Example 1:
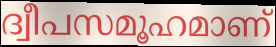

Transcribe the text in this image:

ദ്വീപസമൂഹമാണ്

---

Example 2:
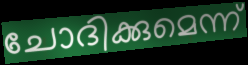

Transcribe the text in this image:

ചോദിക്കുമെന്ന്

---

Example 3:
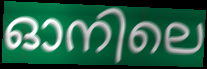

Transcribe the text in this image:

ഓനിലെ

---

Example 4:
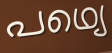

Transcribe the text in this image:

പഥ്യെ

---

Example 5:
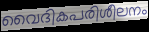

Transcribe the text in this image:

വൈദികപരിശീലനം